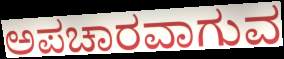
ಅಪಚಾರವಾಗುವ